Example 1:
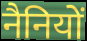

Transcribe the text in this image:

नैनियों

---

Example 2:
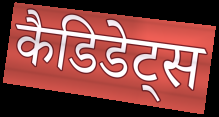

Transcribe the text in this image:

कैडिडेट्स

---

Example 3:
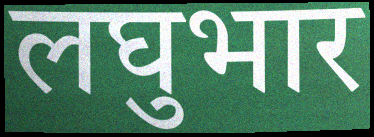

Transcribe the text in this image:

लघुभार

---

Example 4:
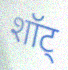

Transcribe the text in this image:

शॉट्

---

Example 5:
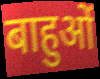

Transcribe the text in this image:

बाहुओं